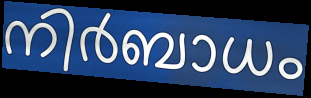
നിർബാധം